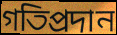
গতিপ্রদান